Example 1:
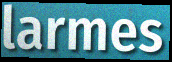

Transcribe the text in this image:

larmes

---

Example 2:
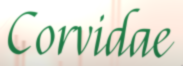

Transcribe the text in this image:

Corvidae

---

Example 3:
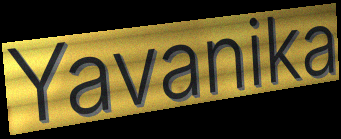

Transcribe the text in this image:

Yavanika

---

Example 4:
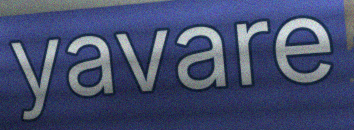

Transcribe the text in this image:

yavare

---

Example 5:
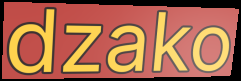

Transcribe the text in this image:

dzako